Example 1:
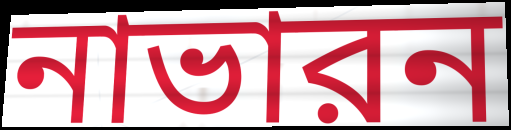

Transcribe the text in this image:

নাভারন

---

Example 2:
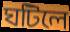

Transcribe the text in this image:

ঘটিলে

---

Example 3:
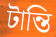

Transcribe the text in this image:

টান্তি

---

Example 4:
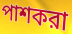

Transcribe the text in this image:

পাশকরা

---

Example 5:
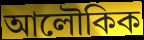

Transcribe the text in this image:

আলৌকিক